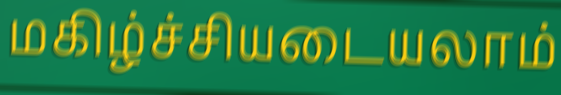
மகிழ்ச்சியடையலாம்